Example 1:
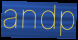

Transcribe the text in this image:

andp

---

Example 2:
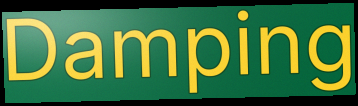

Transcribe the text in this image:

Damping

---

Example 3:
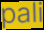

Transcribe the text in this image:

pali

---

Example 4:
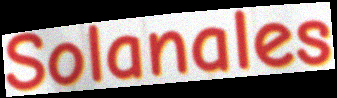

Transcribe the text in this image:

Solanales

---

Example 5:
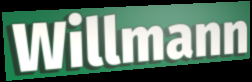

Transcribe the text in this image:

Willmann